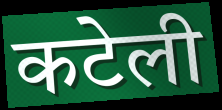
कटेली